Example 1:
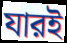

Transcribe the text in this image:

যারই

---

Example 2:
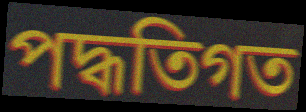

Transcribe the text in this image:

পদ্ধতিগত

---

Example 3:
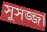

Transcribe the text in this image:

সুসজ্জা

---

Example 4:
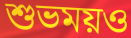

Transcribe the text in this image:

শুভময়ও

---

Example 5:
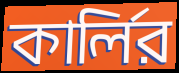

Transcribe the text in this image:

কার্লির